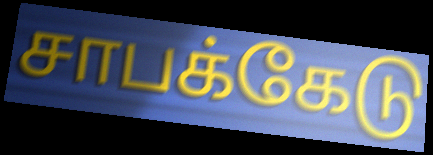
சாபக்கேடு